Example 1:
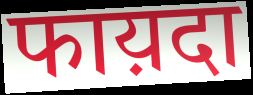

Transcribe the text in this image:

फाय़दा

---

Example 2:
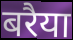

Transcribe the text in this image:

बरैया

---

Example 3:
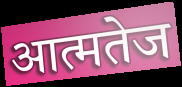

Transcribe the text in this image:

आत्मतेज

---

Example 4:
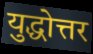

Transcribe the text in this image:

युद्धोत्तर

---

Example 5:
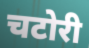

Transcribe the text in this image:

चटोरी